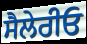
ਸੈਲੇਰੀਓ